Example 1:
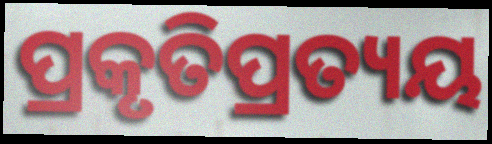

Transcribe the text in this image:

ପ୍ରକୃତିପ୍ରତ୍ୟୟ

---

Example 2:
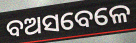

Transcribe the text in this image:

ବଅସବେଳେ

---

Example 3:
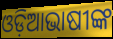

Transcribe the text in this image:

ଓଡ଼ିଆଭାଷୀଙ୍କ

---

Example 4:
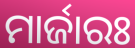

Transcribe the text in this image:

ମାର୍ଜାରଃ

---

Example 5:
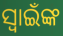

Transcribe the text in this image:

ସ୍ଵାଇଁଙ୍କ